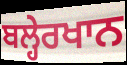
ਬਲ੍ਹੇਰਖਾਨ